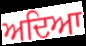
ਅਦਿਆ